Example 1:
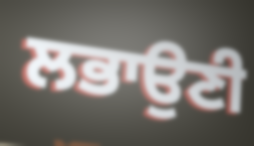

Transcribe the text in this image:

ਲਭਾਉਣੀ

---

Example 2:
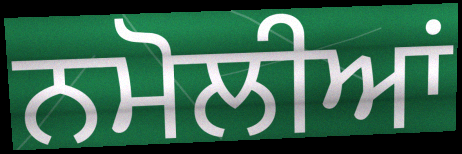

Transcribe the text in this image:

ਨਮੋਲੀਆਂ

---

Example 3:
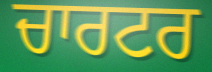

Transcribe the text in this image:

ਚਾਰਟਰ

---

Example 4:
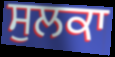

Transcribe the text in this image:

ਸੁਲਕਾ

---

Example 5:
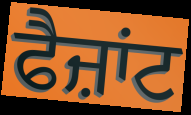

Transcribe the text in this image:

ਫੈਜ਼ਾਂਟ